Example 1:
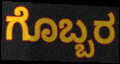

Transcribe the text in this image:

ಗೊಬ್ಬರ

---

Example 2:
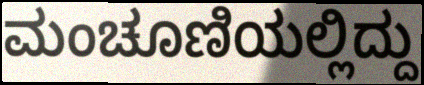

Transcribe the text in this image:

ಮಂಚೂಣಿಯಲ್ಲಿದ್ದು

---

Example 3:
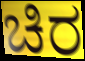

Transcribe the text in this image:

ಚಿರ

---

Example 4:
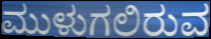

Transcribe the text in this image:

ಮುಳುಗಲಿರುವ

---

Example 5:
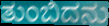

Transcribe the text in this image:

ತುಂಬಿದನು